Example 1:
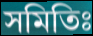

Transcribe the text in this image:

সমিতিঃ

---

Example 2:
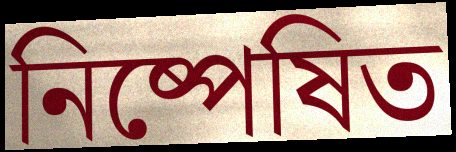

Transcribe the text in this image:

নিষ্পেষিত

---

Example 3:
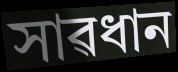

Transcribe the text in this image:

সাৱধান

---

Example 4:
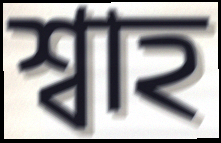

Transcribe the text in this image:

শ্বাহ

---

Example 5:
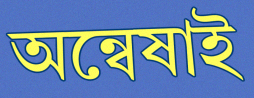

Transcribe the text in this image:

অন্বেষাই